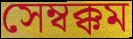
সেম্বক্কম